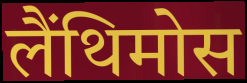
लैंथिमोस